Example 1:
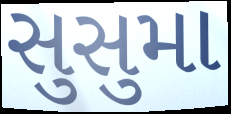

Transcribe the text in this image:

સુસુમા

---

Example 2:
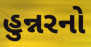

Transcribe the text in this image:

હુન્નરનો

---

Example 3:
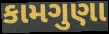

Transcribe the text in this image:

કામગુણા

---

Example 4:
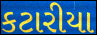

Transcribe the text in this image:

કટારીયા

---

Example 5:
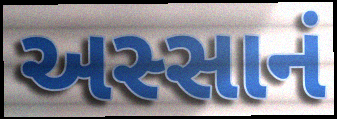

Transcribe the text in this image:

અસ્સાનં